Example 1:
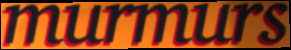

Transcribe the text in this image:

murmurs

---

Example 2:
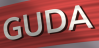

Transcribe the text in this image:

GUDA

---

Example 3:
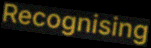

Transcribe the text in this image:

Recognising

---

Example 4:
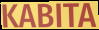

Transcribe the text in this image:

KABITA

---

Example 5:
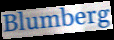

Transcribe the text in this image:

Blumberg